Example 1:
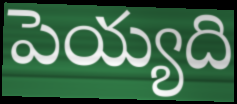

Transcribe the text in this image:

పెయ్యది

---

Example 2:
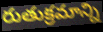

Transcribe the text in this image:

రుతుక్రమాన్ని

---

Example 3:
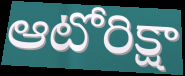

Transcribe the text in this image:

ఆటోరిక్షా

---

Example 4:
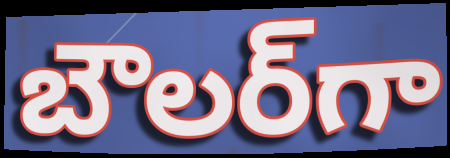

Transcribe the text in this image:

బౌలర్‌గా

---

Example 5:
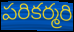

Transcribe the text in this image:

పరికర్మరి